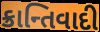
ક્રાન્તિવાદી